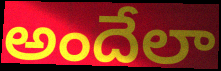
అందేలా